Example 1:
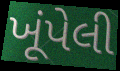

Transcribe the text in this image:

ખૂંપેલી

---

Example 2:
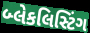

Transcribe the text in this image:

બ્લેકલિસ્ટિંગ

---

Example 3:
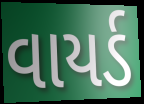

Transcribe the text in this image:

વાયર્ડ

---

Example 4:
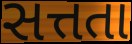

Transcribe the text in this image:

સત્તતા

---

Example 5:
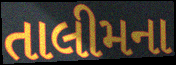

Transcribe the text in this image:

તાલીમના